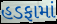
હડફામાં